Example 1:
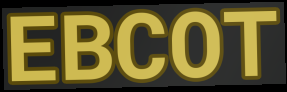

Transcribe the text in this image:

EBCOT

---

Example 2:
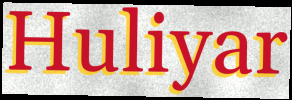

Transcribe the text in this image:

Huliyar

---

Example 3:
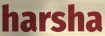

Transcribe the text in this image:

harsha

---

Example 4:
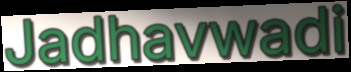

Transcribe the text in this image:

Jadhavwadi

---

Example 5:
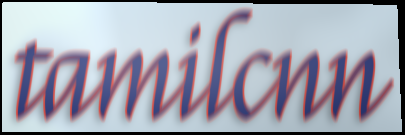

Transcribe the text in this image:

tamilcnn